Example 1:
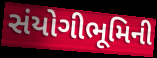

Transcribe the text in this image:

સંયોગીભૂમિની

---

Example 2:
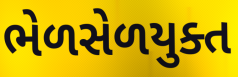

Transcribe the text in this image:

ભેળસેળયુક્ત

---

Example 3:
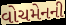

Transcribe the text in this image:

વોચમેનની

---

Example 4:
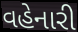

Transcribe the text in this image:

વહેનારી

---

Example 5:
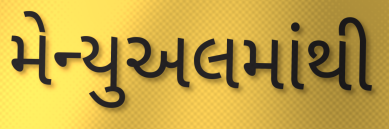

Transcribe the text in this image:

મેન્યુઅલમાંથી